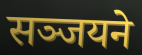
सञ्जयने